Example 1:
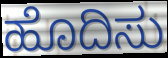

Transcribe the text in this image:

ಹೊದಿಸು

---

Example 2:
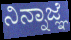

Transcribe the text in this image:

ನಿನ್ನಾಜ್ಞೆ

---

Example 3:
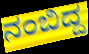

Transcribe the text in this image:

ನಂಬಿದ್ದ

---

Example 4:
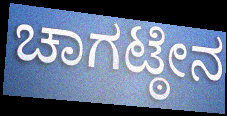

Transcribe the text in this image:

ಚಾಗಟ್ಠೇನ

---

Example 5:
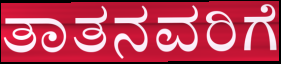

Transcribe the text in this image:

ತಾತನವರಿಗೆ